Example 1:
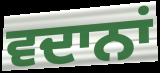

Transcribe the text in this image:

ਵਦਾਨਾਂ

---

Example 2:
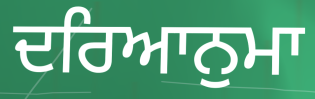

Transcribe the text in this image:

ਦਰਿਆਨੁਮਾ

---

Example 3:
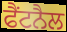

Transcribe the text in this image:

ਫੈਂਟਨੈਲ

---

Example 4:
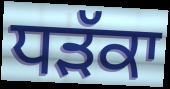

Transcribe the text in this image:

ਧੜੱਕਾ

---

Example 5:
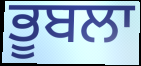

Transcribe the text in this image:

ਭੂਬਲਾ